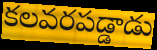
కలవరపడ్డాడు